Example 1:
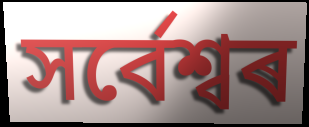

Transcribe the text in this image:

সৰ্বেশ্বৰ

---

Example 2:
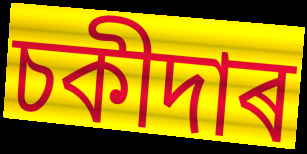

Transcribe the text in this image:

চকীদাৰ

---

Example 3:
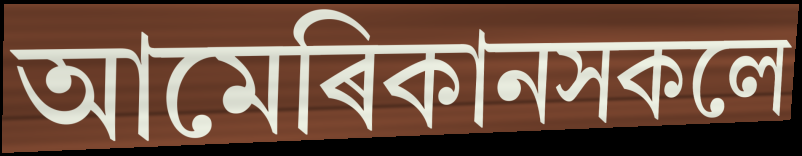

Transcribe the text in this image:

আমেৰিকানসকলে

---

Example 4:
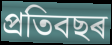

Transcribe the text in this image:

প্ৰতিবছৰ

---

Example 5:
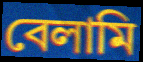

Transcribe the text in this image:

বেলামি